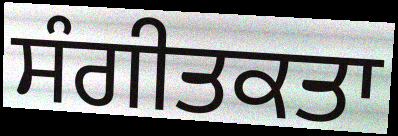
ਸੰਗੀਤਕਤਾ